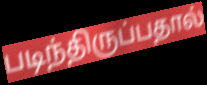
படிந்திருப்பதால்